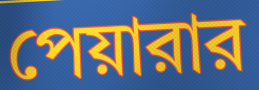
পেয়ারার